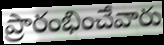
ప్రారంభించేవారు